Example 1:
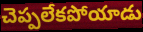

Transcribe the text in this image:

చెప్పలేకపోయాడు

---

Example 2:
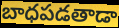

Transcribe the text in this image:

బాధపడతాడా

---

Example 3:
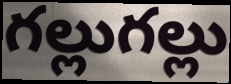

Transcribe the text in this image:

గల్లుగల్లు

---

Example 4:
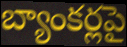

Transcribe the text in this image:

బ్యాంకర్లపై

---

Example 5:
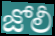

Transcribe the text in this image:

జోలీ